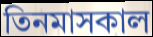
তিনমাসকাল